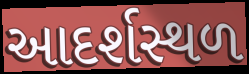
આદર્શસ્થળ